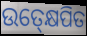
ଉତ୍କ୍ଷେପିତ